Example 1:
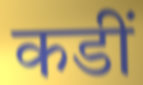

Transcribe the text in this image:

कडीं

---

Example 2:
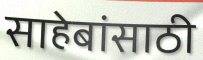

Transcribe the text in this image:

साहेबांसाठी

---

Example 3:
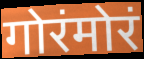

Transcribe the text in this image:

गोरंमोरं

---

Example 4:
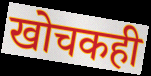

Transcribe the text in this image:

खोचकही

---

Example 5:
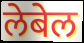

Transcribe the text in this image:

लेबेल